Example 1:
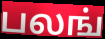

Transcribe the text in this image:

பலங்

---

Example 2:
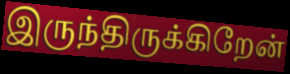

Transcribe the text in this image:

இருந்திருக்கிறேன்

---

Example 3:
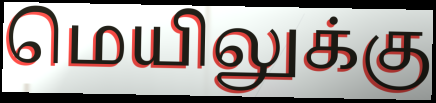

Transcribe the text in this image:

மெயிலுக்கு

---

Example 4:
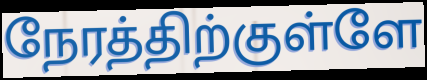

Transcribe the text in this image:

நேரத்திற்குள்ளே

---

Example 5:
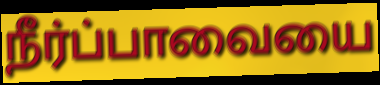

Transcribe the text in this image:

நீர்ப்பாவையை